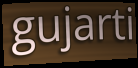
gujarti